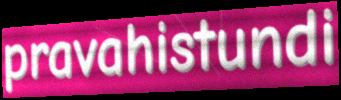
pravahistundi